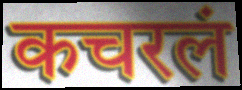
कचरलं